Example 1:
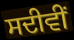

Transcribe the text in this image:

ਸਦੀਵੀਂ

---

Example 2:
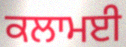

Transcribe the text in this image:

ਕਲਾਮਈ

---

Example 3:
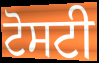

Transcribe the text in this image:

ਟੋਸਟੀ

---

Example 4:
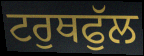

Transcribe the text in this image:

ਟਰੁਥਫੁੱਲ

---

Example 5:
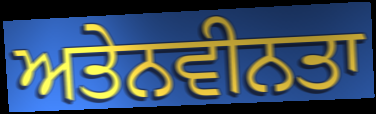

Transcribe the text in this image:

ਅਤੇਨਵੀਨਤਾ